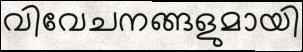
വിവേചനങ്ങളുമായി